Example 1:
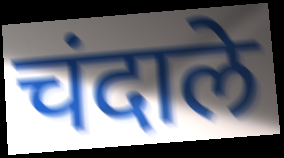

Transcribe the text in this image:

चंदाले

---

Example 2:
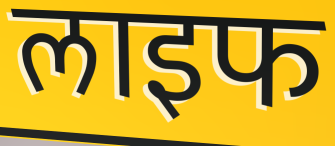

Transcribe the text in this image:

लाइफ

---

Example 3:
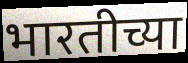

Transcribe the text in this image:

भारतीच्‍या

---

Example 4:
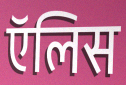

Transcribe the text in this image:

ऍलिस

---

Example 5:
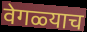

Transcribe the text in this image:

वेगळ्याच